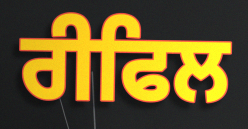
ਰੀਫਿਲ